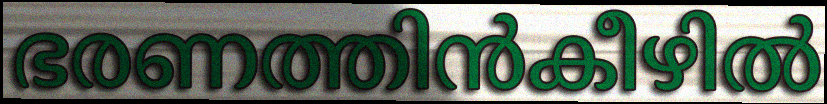
ഭരണത്തിൻകീഴിൽ